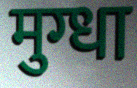
मुग्धा